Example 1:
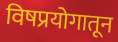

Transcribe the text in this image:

विषप्रयोगातून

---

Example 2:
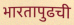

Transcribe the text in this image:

भारतापुढची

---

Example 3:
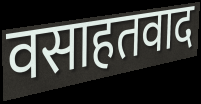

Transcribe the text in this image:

वसाहतवाद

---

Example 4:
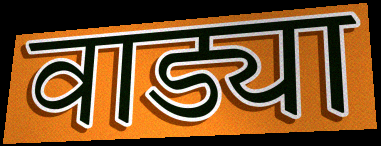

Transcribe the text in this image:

वाड्या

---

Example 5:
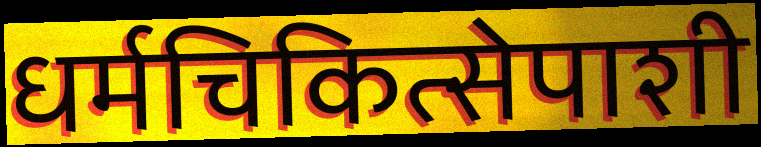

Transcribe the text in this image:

धर्मचिकित्सेपाशी